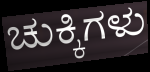
ಚುಕ್ಕಿಗಳು